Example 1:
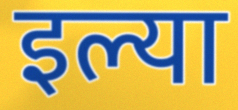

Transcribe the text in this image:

इल्या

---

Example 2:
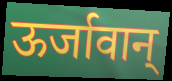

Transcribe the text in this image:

ऊर्जावान्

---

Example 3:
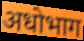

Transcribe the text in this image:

अधोभाग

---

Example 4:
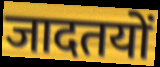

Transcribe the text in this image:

जादतयों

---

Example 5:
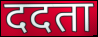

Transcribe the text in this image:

ददता